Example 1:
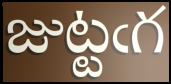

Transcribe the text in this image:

జుట్టఁగ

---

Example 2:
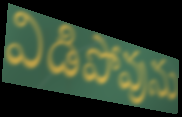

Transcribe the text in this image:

విడిపోవును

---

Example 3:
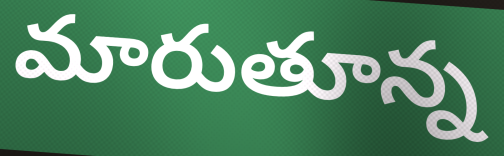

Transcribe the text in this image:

మారుతూన్న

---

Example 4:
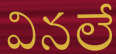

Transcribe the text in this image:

వినలే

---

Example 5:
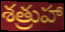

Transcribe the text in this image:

శత్రుహా